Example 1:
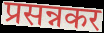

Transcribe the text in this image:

प्रसन्नकर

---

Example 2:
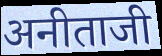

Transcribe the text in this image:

अनीताजी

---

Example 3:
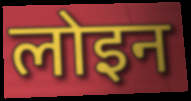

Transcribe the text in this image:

लोइन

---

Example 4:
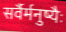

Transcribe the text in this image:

सर्वैर्मनुष्यैः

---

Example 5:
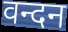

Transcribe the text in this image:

वन्दन